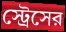
স্ট্রেসের